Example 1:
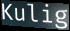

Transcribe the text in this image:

Kulig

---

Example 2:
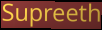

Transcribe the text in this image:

Supreeth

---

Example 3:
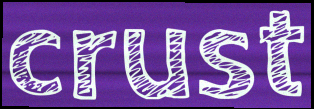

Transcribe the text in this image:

crust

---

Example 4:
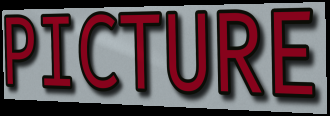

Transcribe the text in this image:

PICTURE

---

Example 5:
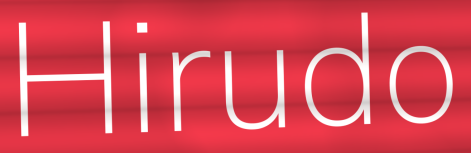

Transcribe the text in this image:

Hirudo